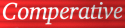
Comperative